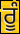
ਰੂੰ